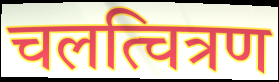
चलत्चित्रण